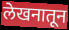
लेखनातून